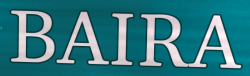
BAIRA